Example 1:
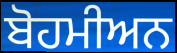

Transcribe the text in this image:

ਬੋਹਮੀਅਨ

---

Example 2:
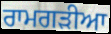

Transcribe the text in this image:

ਰਾਮਗੜੀਆ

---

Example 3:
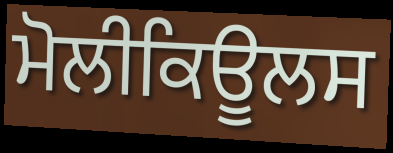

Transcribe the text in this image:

ਮੋਲੀਕਿਊਲਸ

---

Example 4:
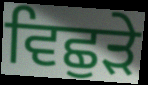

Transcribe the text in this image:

ਵਿਛੁੜੇ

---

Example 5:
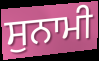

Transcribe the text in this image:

ਸੁਨਾਮੀ